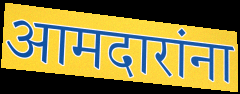
आमदारांना